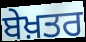
ਬੇਖ਼ਤਰ